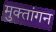
मुक्तांगन